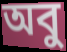
অবু